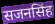
सजनसिंह